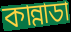
কান্নাডা